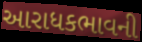
આરાધકભાવની